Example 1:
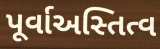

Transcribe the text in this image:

પૂર્વાઅસ્તિત્વ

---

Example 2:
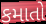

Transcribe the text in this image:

કમાતો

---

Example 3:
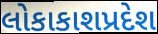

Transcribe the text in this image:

લોકાકાશપ્રદેશ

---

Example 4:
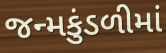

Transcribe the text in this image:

જન્મકુંડળીમાં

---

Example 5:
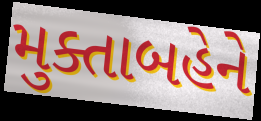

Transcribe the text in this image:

મુક્તાબહેને